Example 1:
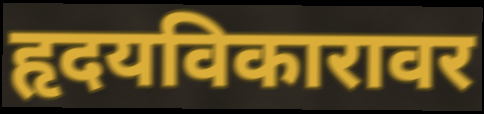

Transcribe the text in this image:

हृदयविकारावर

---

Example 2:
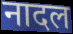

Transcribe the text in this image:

नादल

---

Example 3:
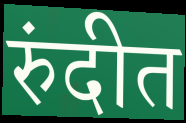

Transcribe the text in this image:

रुंदीत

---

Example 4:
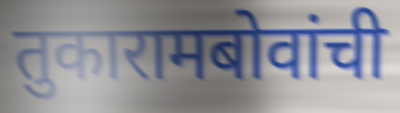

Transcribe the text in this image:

तुकारामबोवांची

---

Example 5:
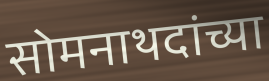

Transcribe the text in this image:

सोमनाथदांच्या